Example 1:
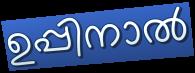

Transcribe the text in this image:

ഉപ്പിനാൽ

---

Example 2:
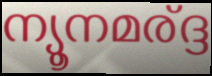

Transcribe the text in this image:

ന്യൂനമര്ദ്ദ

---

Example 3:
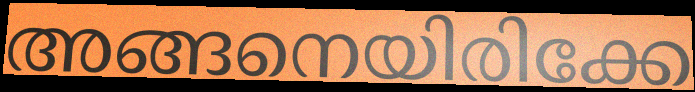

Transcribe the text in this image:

അങ്ങനെയിരിക്കേ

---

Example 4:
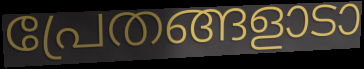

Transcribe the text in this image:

പ്രേതങ്ങളാടാ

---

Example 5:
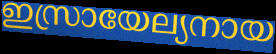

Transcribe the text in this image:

ഇസ്രായേല്യനായ